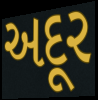
અદૂર